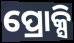
ପ୍ରୋକ୍ସି